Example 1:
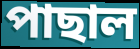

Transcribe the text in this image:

পাছাল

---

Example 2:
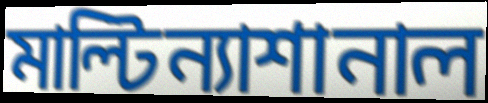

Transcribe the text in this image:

মাল্টিন্যাশানাল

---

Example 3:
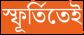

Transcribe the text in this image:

স্ফূর্তিতেই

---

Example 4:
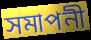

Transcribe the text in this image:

সমাপনী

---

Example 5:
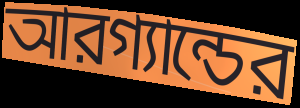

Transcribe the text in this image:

আরগ্যান্ডের